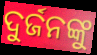
ଦୁର୍ଜନଙ୍କୁ